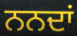
ਨਨਦਾਂ